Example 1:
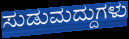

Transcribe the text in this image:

ಸುಡುಮದ್ದುಗಳು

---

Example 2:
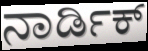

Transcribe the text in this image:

ನಾರ್ಡಿಕ್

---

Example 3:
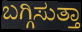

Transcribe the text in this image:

ಬಗ್ಗಿಸುತ್ತಾ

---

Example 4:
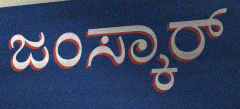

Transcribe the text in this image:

ಜಂಸ್ಕಾರ್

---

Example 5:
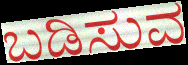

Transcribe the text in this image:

ಬಡಿಸುವ